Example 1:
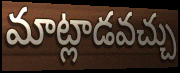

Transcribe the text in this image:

మాట్లాడవచ్చు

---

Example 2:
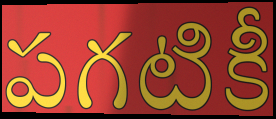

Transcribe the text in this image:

పగటికీ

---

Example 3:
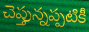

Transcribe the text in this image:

చెప్తున్నప్పటికీ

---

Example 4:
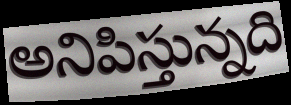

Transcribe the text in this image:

అనిపిస్తున్నది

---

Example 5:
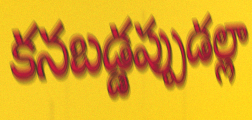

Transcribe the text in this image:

కనబడ్డప్పుడల్లా